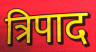
त्रिपाद